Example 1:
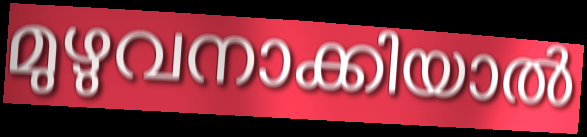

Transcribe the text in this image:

മുഴുവനാക്കിയാൽ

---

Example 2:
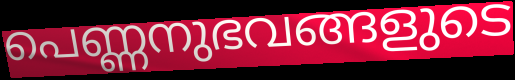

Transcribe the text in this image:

പെണ്ണനുഭവങ്ങളുടെ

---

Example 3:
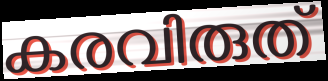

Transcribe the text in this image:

കരവിരുത്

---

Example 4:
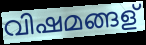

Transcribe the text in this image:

വിഷമങ്ങള്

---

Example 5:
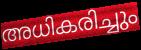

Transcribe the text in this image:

അധികരിച്ചും